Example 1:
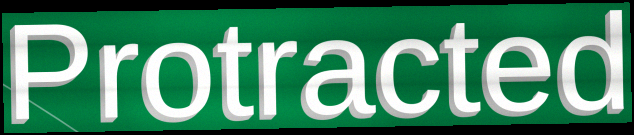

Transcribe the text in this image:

Protracted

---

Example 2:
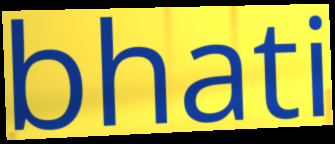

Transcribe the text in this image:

bhati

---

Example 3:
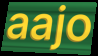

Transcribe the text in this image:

aajo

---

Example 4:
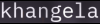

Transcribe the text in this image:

khangela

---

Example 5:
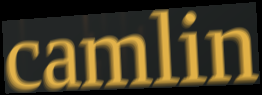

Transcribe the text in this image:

camlin